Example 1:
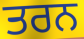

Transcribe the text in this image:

ਤਰਨ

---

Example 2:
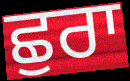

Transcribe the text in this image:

ਛੁਰਾ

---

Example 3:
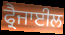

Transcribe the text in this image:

ਫ੍ਰੈਜਾਈਲ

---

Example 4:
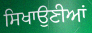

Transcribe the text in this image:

ਸਿਖਾਉਣੀਆਂ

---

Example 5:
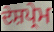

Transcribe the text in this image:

ਦੇਸ਼ਪ੍ਰੇਮ